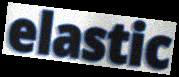
elastic